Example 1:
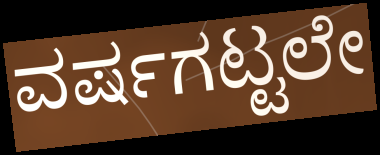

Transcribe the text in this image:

ವರ್ಷಗಟ್ಟಲೇ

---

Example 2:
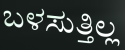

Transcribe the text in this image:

ಬಳಸುತ್ತಿಲ್ಲ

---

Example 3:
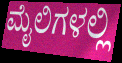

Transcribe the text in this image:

ಮೈಲಿಗಳಲ್ಲಿ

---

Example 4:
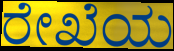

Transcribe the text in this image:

ರೇಖೆಯ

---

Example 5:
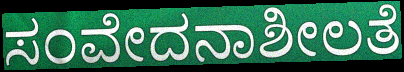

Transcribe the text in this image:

ಸಂವೇದನಾಶೀಲತೆ